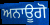
ਅਨਾਊਗੋ